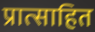
प्रात्साहित